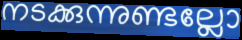
നടക്കുന്നുണ്ടല്ലോ